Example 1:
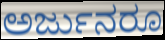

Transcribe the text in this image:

ಅರ್ಜುನರೂ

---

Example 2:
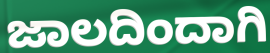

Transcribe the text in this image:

ಜಾಲದಿಂದಾಗಿ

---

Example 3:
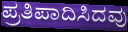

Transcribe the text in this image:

ಪ್ರತಿಪಾದಿಸಿದವು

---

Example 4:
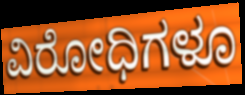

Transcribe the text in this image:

ವಿರೋಧಿಗಳೂ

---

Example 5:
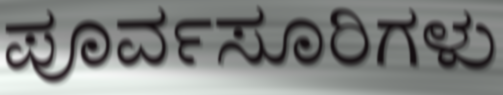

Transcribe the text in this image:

ಪೂರ್ವಸೂರಿಗಳು